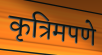
कृत्रिमपणे